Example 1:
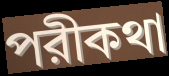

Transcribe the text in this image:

পরীকথা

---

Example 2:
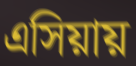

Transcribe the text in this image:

এসিয়ায়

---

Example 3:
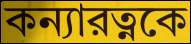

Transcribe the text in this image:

কন্যারত্নকে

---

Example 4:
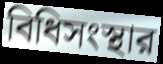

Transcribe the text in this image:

বিধিসংস্থার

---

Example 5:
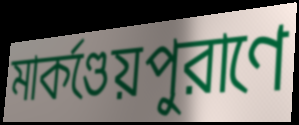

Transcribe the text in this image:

মার্কণ্ডেয়পুরাণে